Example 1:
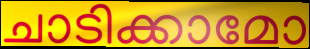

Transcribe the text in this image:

ചാടിക്കാമോ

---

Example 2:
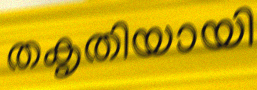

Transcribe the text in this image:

തകൃതിയായി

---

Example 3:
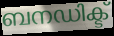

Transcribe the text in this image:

ബനഡിക്ട്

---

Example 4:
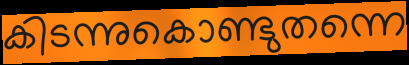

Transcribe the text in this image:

കിടന്നുകൊണ്ടുതന്നെ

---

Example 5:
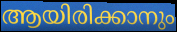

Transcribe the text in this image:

ആയിരിക്കാനും